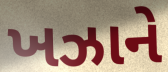
ખઝાને